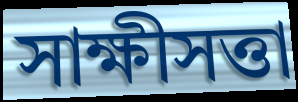
সাক্ষীসত্তা